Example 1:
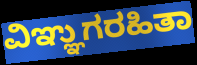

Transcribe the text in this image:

ವಿಞ್ಞುಗರಹಿತಾ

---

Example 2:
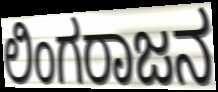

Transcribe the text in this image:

ಲಿಂಗರಾಜನ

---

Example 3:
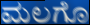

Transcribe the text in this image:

ಮಲಗೊ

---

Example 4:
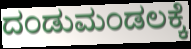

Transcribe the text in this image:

ದಂಡುಮಂಡಲಕ್ಕೆ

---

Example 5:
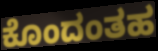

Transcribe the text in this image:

ಕೊಂದಂತಹ